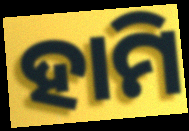
ହାମି